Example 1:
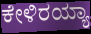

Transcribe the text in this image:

ಕೇಳಿರಯ್ಯಾ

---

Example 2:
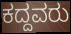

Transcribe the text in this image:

ಕದ್ದವರು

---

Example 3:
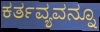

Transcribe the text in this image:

ಕರ್ತವ್ಯವನ್ನೂ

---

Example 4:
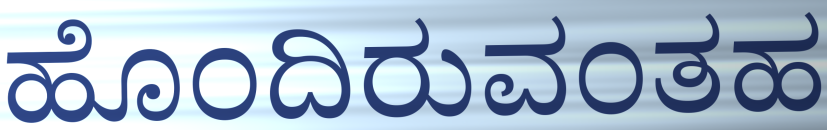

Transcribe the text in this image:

ಹೊಂದಿರುವಂತಹ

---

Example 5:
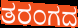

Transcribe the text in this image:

ತರಂಗದ